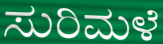
ಸುರಿಮಳೆ